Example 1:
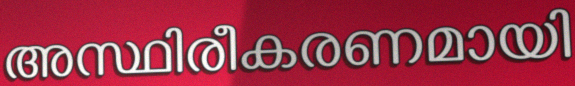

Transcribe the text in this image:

അസ്ഥിരീകരണമായി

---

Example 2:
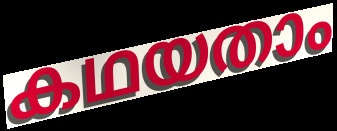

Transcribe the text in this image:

കഥയതാം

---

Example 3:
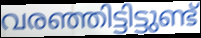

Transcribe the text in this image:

വരഞ്ഞിട്ടിട്ടുണ്ട്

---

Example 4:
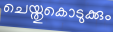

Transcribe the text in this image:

ചെയ്തുകൊടുക്കും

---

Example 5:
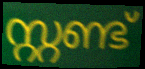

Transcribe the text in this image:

സ്റ്റണ്ട്